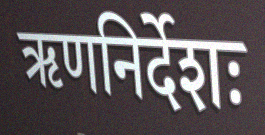
ऋणनिर्देशः